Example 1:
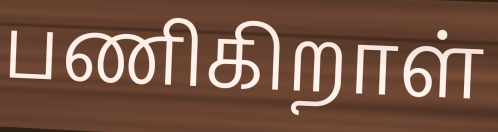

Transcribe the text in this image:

பணிகிறாள்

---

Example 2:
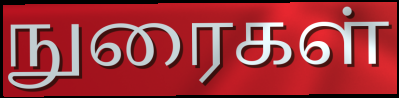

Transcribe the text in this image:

நுரைகள்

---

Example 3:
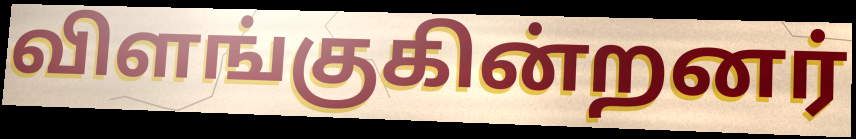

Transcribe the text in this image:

விளங்குகின்றனர்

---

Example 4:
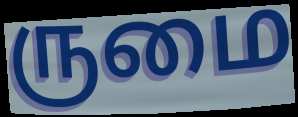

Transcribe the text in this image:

ருமை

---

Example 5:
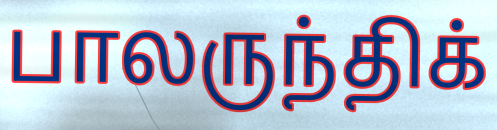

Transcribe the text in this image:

பாலருந்திக்